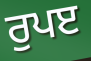
ਰੁਪੲ